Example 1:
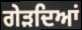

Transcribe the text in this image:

ਗੇੜਦਿਆਂ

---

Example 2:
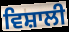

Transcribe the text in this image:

ਵਿਸ਼ਾਲੀ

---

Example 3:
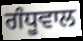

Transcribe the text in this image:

ਗੰਧੂਵਾਲ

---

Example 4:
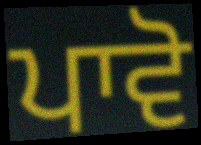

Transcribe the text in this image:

ਪਾਵੋ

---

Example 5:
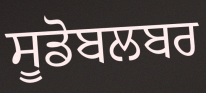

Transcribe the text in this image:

ਸੂਡੋਬਲਬਰ